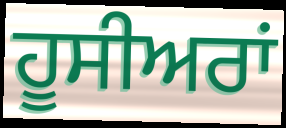
ਹੂਸੀਅਰਾਂ